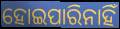
ହୋଇପାରିନାହିଁ